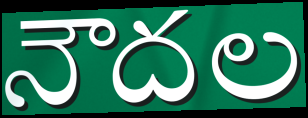
నౌదల